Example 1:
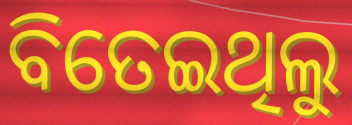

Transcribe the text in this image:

ବିତେଇଥିଲୁ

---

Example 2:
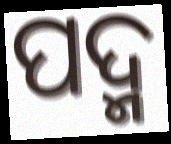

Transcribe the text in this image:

ପଦ୍ମ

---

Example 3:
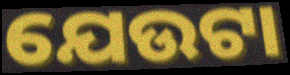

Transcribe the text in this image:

ଯେଉଟା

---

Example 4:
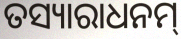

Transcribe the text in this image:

ତସ୍ୟାରାଧନମ୍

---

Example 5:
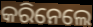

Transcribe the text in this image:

କରିନେଲେ